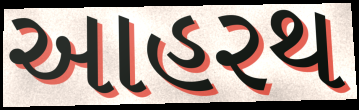
આહરથ